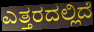
ಎತ್ತರದಲ್ಲಿದೆ